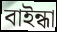
বাইন্ধা